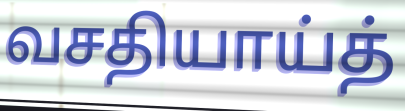
வசதியாய்த்